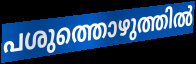
പശുത്തൊഴുത്തിൽ